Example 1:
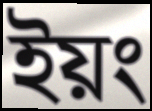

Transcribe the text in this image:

ইয়ং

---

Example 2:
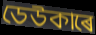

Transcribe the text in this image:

ডেউকাৰে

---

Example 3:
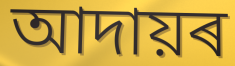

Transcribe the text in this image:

আদায়ৰ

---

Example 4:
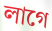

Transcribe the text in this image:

লাগে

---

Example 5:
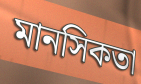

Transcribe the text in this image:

মানসিকতা